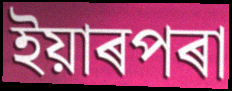
ইয়াৰপৰা